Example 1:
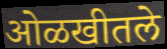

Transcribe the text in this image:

ओळखीतले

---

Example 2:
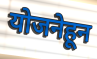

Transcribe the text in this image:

योजनेहून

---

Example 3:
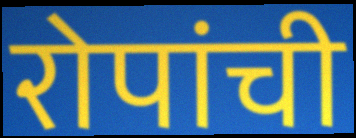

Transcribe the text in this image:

रोपांची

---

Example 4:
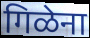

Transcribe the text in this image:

गिळेना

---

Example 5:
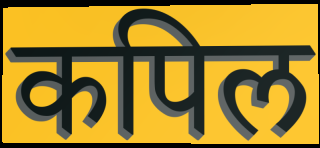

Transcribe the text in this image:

कपिल